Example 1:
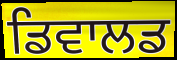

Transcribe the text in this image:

ਡਿਵਾਲਡ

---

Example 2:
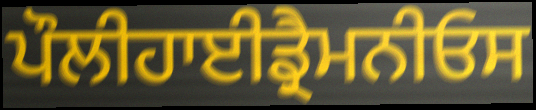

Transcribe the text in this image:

ਪੌਲੀਹਾਈਡ੍ਰੈਮਨੀਓਸ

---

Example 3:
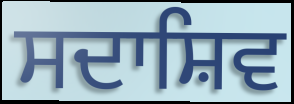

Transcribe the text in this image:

ਸਦਾਸ਼ਿਵ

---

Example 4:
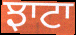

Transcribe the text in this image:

ਝਾਟਾ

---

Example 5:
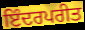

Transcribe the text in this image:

ਇੰਦਰਪਰੀਤ